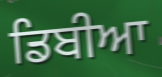
ਡਿਬੀਆ